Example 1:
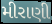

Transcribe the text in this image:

મીરાણી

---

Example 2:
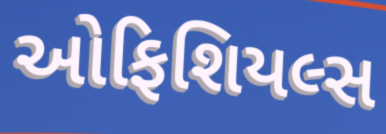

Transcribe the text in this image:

ઓફિશિયલ્સ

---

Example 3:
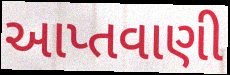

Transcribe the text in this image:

આપ્તવાણી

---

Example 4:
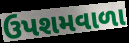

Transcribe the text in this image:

ઉપશમવાળા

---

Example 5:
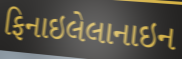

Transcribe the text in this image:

ફિનાઇલેલાનાઇન